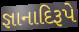
જ્ઞાનાદિરૂપે